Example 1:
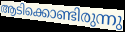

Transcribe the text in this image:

ആടിക്കൊണ്ടിരുന്നു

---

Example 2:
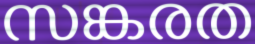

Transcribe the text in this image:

സങ്കരത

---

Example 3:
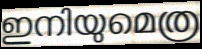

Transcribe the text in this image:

ഇനിയുമെത്ര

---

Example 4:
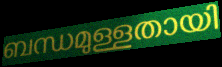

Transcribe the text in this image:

ബന്ധമുള്ളതായി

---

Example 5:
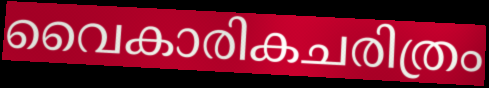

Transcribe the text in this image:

വൈകാരികചരിത്രം